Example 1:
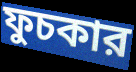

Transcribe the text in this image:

ফুচকার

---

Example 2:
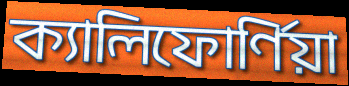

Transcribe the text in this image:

ক্যালিফোর্ণিয়া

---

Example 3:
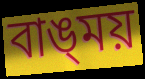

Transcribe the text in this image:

বাঙ্‌ময়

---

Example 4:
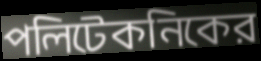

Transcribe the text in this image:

পলিটেকনিকের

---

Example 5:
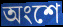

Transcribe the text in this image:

অংশে